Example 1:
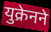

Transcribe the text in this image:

युक्रेनने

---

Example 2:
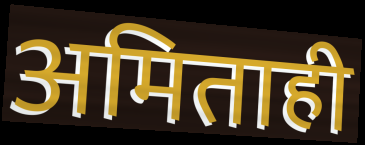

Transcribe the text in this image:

अमिताही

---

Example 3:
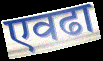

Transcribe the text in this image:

एवढा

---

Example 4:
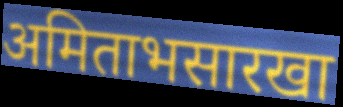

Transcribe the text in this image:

अमिताभसारखा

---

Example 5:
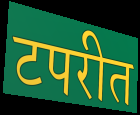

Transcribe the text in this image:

टपरीत